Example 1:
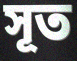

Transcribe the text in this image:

সূত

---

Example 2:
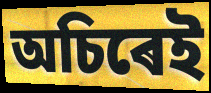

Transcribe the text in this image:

অচিৰেই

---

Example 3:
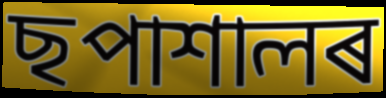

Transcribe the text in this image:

ছপাশালৰ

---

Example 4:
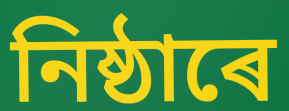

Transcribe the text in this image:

নিষ্ঠাৰে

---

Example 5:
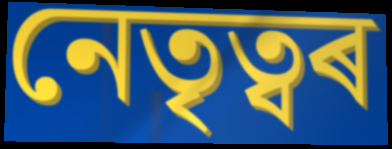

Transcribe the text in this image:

নেতৃত্বৰ